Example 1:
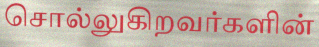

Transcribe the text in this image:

சொல்லுகிறவர்களின்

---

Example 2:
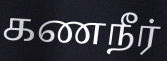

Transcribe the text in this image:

கணநீர்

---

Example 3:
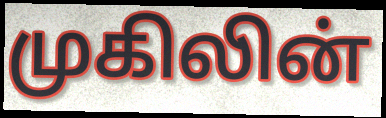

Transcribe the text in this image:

முகிலின்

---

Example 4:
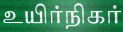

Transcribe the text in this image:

உயிர்நிகர்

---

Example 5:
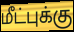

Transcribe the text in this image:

மீட்புக்கு